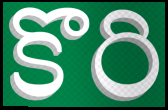
కొరి